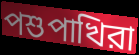
পশুপাখিরা